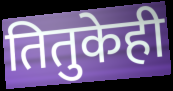
तितुकेही